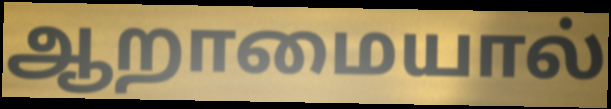
ஆறாமையால்